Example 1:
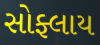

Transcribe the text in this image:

સોફ્લાય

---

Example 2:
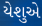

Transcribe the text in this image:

યેશુએ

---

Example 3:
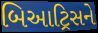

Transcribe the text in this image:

બિઆટ્રિસને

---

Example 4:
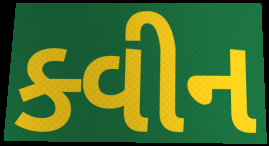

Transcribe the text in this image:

ક્વીન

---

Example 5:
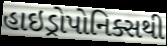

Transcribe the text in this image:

હાઇડ્રોપોનિક્સથી